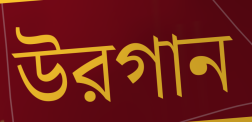
উরগান